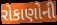
રોકાણોની